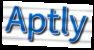
Aptly